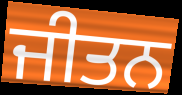
ਜੀਤਨ